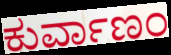
ಕುರ್ವಾಣಂ